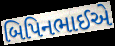
બિપિનભાઈએ